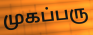
முகப்பரு